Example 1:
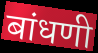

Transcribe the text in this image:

बांधणी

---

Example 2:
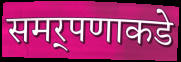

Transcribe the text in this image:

समर्पणाकडे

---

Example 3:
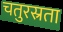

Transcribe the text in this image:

चतुरस्रता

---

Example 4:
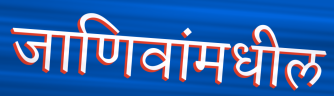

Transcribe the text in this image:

जाणिवांमधील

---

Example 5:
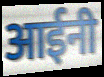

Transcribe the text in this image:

आईनी